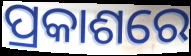
ପ୍ରକାଶରେ